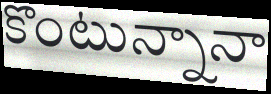
కొంటున్నానా